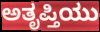
ಅತೃಪ್ತಿಯು